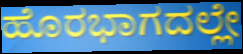
ಹೊರಭಾಗದಲ್ಲೇ